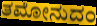
ತಮೋನುದಂ